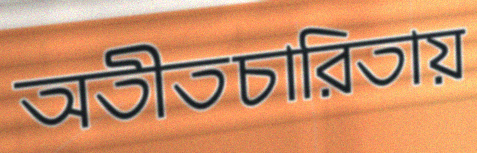
অতীতচারিতায়